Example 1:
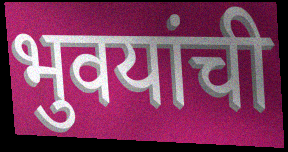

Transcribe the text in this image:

भुवयांची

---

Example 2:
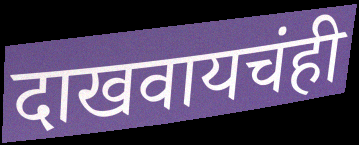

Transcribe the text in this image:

दाखवायचंही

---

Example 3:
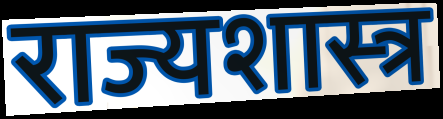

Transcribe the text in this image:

राज्यशास्त्र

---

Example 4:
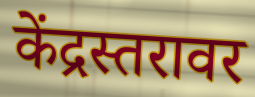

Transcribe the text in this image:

केंद्रस्तरावर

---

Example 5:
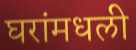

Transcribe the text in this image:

घरांमधली